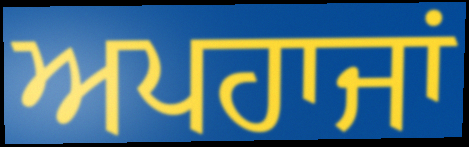
ਅਪਹਾਜਾਂ